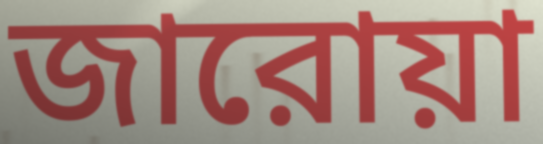
জারোয়া